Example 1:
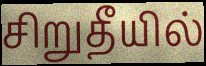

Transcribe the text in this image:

சிறுதீயில்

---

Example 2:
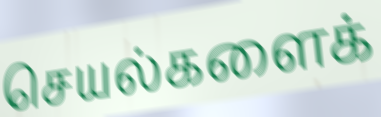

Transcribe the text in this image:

செயல்களைக்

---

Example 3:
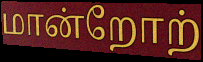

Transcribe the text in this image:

மான்றோற்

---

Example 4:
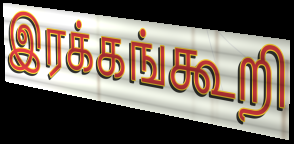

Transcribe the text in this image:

இரக்கங்கூறி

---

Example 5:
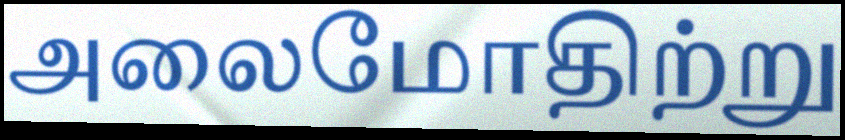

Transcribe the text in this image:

அலைமோதிற்று